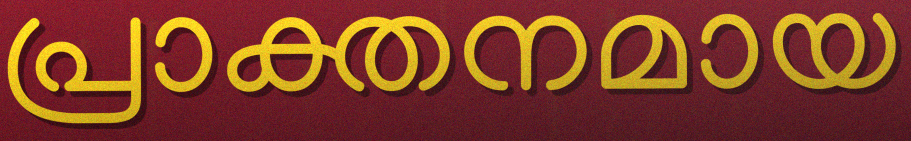
പ്രാക്തനമായ